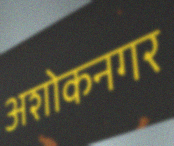
अशोकनगर